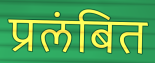
प्रलंबित